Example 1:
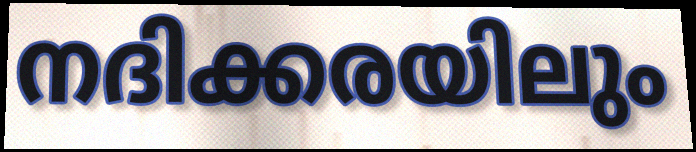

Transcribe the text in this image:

നദിക്കരയിലും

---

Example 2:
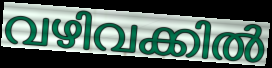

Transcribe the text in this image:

വഴിവക്കിൽ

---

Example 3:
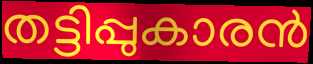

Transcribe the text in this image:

തട്ടിപ്പുകാരൻ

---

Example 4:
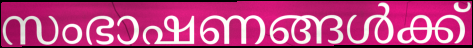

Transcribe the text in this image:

സംഭാഷണങ്ങൾക്ക്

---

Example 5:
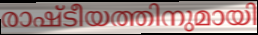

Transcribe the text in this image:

രാഷ്ടീയത്തിനുമായി